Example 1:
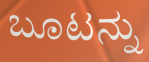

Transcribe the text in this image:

ಬೂಟನ್ನು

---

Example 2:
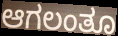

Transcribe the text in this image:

ಆಗಲಂತೂ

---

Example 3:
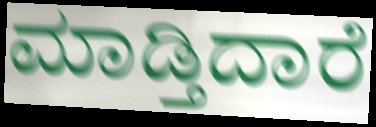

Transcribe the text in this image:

ಮಾಡ್ತಿದಾರೆ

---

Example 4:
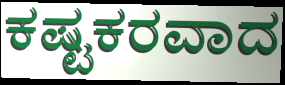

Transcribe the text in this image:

ಕಷ್ಟಕರವಾದ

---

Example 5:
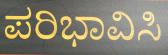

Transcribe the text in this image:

ಪರಿಭಾವಿಸಿ